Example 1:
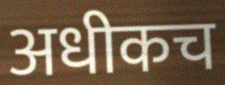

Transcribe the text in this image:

अधीकच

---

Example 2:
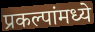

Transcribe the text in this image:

प्रकल्पांमध्ये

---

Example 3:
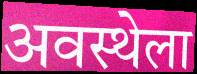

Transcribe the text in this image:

अवस्थेला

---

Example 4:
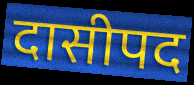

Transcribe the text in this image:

दासीपद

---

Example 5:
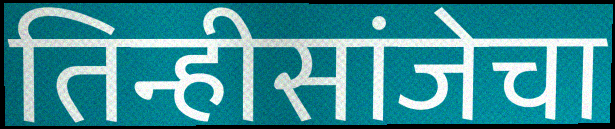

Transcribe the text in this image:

तिन्हीसांजेचा